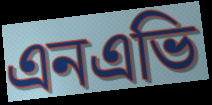
এনএভি